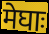
मेघाः